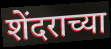
शेंदराच्या